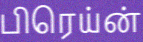
பிரெய்ன்